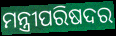
ମନ୍ତ୍ରୀପରିଷଦର